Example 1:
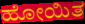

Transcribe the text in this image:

ಹೋಯಿತ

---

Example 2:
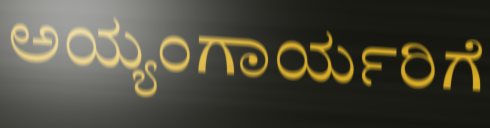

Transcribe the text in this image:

ಅಯ್ಯಂಗಾರ್ಯರಿಗೆ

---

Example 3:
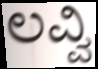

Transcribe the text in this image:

ಲವ್ವಿ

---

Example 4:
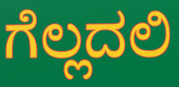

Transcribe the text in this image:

ಗೆಲ್ಲದಲಿ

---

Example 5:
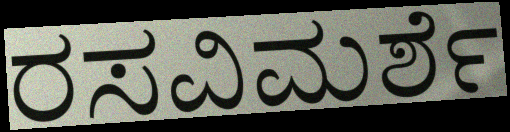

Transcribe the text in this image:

ರಸವಿಮರ್ಶೆ